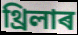
থ্ৰিলাৰ